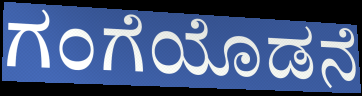
ಗಂಗೆಯೊಡನೆ